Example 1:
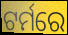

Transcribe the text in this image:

ଟର୍ମରେ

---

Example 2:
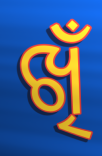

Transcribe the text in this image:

ଖିଁ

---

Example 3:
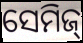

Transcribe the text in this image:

ସେମିଜ୍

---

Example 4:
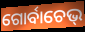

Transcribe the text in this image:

ଗୋର୍ବାଚେଭ୍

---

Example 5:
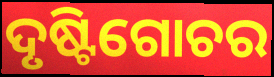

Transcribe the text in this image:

ଦୃଷ୍ଟିଗୋଚର